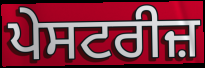
ਪੇਸਟਰੀਜ਼